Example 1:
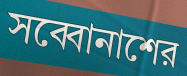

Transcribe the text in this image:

সব্বোনাশের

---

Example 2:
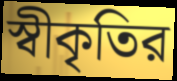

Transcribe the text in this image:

স্বীকৃতির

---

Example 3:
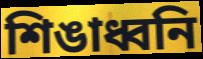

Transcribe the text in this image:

শিঙাধ্বনি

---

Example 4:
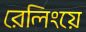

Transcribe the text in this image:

রেলিংয়ে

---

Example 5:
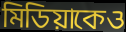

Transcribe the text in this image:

মিডিয়াকেও